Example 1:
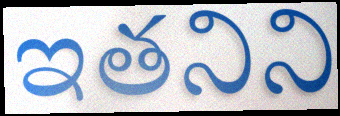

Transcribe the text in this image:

ఇతనిని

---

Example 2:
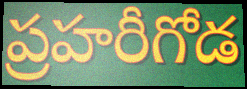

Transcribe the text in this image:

ప్రహరీగోడ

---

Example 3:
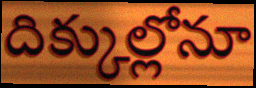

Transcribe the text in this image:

దిక్కుల్లోనూ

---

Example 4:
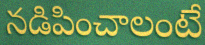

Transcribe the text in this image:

నడిపించాలంటే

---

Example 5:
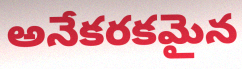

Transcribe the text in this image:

అనేకరకమైన